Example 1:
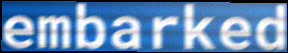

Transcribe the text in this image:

embarked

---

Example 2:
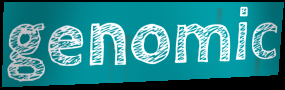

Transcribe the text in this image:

genomic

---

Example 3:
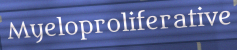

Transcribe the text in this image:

Myeloproliferative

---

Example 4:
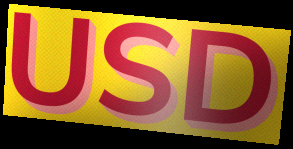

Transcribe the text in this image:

USD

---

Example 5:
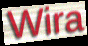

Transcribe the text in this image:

Wira